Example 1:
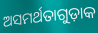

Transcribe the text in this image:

ଅସମର୍ଥତାଗୁଡ଼ାକ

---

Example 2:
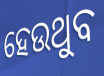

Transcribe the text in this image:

ହେଉଥୁବ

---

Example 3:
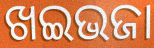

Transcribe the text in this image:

ଖଇଭଜା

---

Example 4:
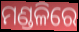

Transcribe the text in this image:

ମଣ୍ଡଳିରେ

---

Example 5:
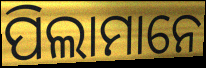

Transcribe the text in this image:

ପିଲାମାନେ